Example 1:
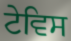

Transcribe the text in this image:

ਟੇਵਿਸ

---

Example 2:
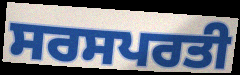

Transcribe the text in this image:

ਸਰਸਪਰਤੀ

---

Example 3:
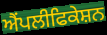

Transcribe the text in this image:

ਐਂਪਲੀਫਿਕੇਸ਼ਨ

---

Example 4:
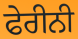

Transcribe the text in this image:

ਫੇਰੀਨੀ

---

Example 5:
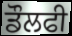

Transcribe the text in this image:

ਡੌਲਫੀ